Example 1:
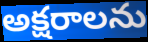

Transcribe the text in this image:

అక్షరాలను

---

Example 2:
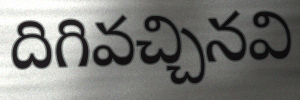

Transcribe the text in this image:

దిగివచ్చినవి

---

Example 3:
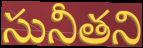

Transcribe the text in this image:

సునీతని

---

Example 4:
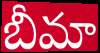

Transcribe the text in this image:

బీమా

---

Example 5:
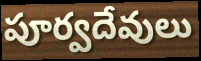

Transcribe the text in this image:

పూర్వదేవులు